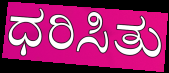
ಧರಿಸಿತು